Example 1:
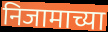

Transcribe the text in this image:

निजामाच्या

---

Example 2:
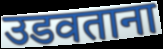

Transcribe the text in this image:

उडवताना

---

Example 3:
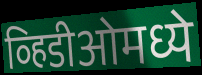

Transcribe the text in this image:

व्हिडीओमध्ये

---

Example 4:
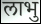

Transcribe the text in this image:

लाभु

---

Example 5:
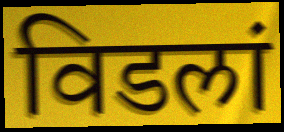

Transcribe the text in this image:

विडलां